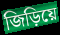
জিড়িয়ে